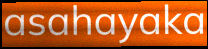
asahayaka